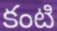
కంటి